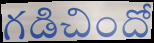
గడిచిందో